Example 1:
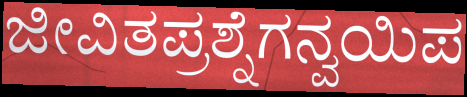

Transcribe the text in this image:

ಜೀವಿತಪ್ರಶ್ನೆಗನ್ವಯಿಪ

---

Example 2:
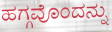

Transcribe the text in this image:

ಹಗ್ಗವೊಂದನ್ನು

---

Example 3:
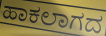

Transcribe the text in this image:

ಹಾಕಲಾಗದ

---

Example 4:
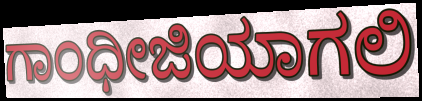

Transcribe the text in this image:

ಗಾಂಧೀಜಿಯಾಗಲಿ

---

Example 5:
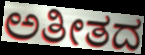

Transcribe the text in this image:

ಅತೀತದ